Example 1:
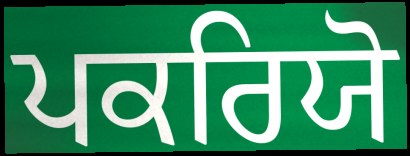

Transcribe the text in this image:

ਪਕਰਿਯੋ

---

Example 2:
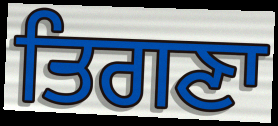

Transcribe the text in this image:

ਤਿਗਣਾ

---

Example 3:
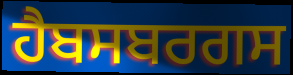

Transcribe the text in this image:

ਹੈਬਸਬਰਗਸ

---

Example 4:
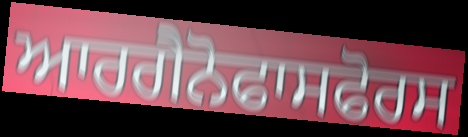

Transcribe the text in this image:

ਆਰਗੈਨੋਫਾਸਫੋਰਸ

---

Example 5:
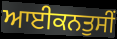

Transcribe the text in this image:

ਆਈਕਨਤੁਸੀਂ